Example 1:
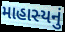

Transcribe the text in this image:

માહાસ્યનું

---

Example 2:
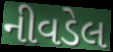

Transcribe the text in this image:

નીવડેલ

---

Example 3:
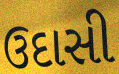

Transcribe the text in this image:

ઉદાસી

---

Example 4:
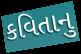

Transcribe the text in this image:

કવિતાનુ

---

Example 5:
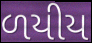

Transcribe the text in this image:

ળયીય